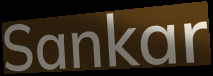
Sankar